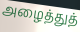
அழைத்துத்